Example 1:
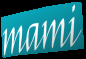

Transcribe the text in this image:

mami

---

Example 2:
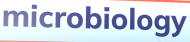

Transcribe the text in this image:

microbiology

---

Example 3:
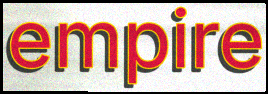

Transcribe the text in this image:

empire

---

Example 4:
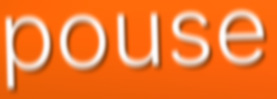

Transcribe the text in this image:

pouse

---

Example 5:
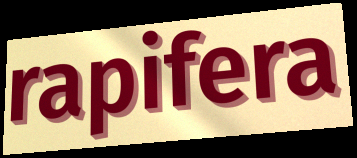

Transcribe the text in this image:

rapifera